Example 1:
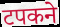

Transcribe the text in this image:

टपकने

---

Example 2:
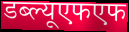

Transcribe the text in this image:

डब्ल्यूएफएफ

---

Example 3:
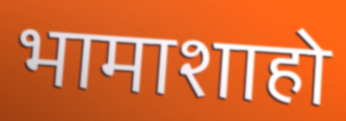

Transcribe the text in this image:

भामाशाहो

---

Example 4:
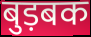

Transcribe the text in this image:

बुड़बक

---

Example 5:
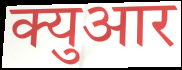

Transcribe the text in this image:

क्युआर